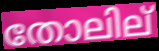
തോലില്